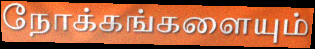
நோக்கங்களையும்